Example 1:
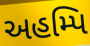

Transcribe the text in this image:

અહમ્પિ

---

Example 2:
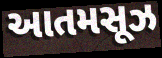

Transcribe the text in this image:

આતમસૂઝ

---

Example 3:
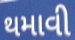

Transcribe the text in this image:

થમાવી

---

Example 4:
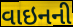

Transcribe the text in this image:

વાઇનની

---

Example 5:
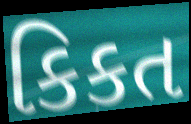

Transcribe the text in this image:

કિકત